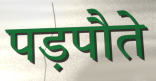
पड़पौते